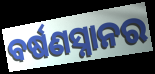
ବର୍ଷଣସ୍ନାନର